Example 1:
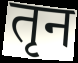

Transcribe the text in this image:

तृन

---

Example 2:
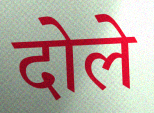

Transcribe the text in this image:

दोले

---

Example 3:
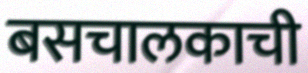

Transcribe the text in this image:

बसचालकाची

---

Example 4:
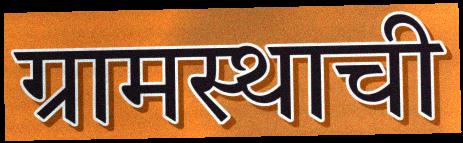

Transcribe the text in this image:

ग्रामस्थाची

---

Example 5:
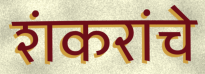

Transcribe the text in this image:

शंकरांचे